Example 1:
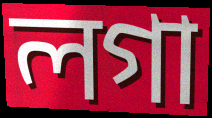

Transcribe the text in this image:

লগা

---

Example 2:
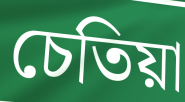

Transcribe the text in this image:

চেতিয়া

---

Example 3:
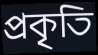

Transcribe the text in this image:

প্ৰকৃতি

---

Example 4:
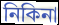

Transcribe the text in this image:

নিকিনা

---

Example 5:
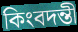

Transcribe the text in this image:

কিংবদন্তী